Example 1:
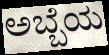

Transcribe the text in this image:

ಅಬ್ಬೆಯ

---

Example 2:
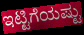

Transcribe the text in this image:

ಇಟ್ಟಿಗೆಯಷ್ಟು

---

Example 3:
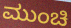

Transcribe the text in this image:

ಮುಂಚಿ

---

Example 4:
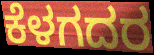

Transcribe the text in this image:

ಕೆಳಗದರ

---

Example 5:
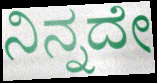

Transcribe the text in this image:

ನಿನ್ನದೇ